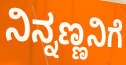
ನಿನ್ನಣ್ಣನಿಗೆ